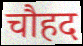
चौहद